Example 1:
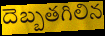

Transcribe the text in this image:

దెబ్బతగిలిన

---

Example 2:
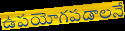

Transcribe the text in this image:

ఉపయోగపడాలనే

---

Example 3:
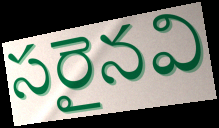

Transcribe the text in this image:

సరైనవి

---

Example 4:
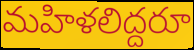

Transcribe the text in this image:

మహిళలిద్దరూ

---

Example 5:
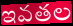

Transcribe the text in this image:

ఇవతల